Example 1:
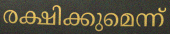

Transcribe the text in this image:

രക്ഷിക്കുമെന്ന്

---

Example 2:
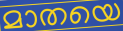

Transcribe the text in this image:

മാതയെ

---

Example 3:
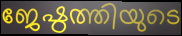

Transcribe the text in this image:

ജേഷ്ഠത്തിയുടെ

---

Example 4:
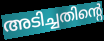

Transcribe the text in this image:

അടിച്ചതിന്റെ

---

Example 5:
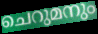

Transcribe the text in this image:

ചെറുമനും